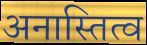
अनास्तित्व